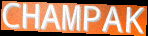
CHAMPAK